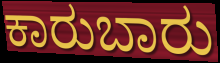
ಕಾರುಬಾರು